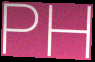
PH